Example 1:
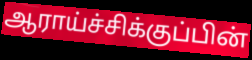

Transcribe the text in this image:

ஆராய்ச்சிக்குப்பின்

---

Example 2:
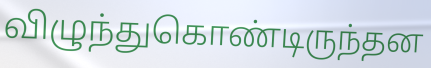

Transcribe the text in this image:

விழுந்துகொண்டிருந்தன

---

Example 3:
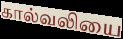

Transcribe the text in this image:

கால்வலியை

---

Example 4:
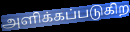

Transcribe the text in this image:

அளிக்கப்படுகிற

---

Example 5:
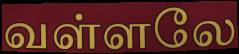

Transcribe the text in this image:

வள்ளலே